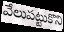
వేలుపట్టుకొని